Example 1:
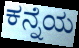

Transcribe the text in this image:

ಕನ್ನೆಯ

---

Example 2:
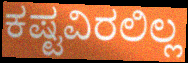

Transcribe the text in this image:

ಕಷ್ಟವಿರಲಿಲ್ಲ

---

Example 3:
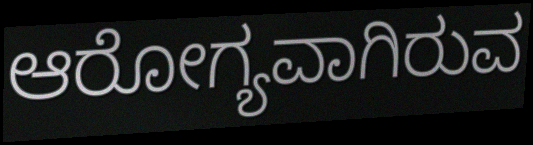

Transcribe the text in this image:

ಆರೋಗ್ಯವಾಗಿರುವ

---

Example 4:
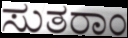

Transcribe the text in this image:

ಸುತರಾಂ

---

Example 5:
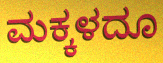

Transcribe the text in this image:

ಮಕ್ಕಳದೂ